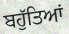
ਬਹੁੱਤਿਆਂ